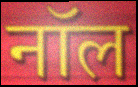
नॉल